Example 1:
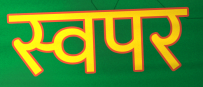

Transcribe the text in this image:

स्वपर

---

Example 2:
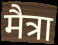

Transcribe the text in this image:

मैत्रा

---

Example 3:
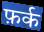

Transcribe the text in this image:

फ़र्क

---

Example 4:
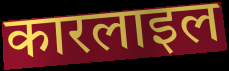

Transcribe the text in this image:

कारलाइल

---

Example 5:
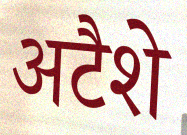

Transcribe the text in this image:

अटैशे